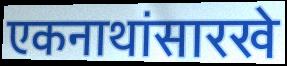
एकनाथांसारखे